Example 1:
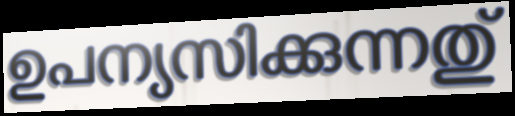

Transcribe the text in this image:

ഉപന്യസിക്കുന്നതു്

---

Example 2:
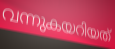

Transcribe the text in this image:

വന്നുകയറിയത്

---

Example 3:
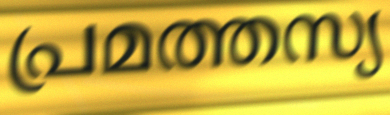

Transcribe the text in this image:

പ്രമത്തസ്യ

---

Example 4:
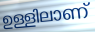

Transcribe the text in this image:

ഉള്ളിലാണ്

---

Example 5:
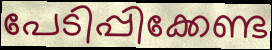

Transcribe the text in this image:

പേടിപ്പിക്കേണ്ട